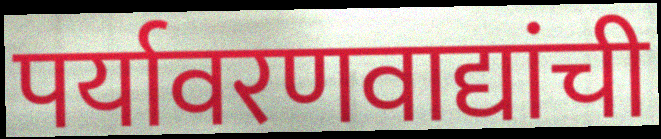
पर्यावरणवाद्यांची